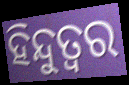
ହିନ୍ଦୁତ୍ବର